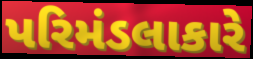
પરિમંડલાકારે